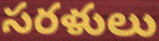
సరళులు